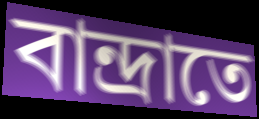
বান্দ্রাতে